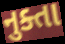
નુક્તા